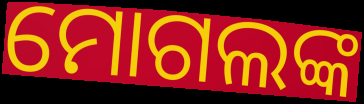
ମୋଗଲଙ୍କ